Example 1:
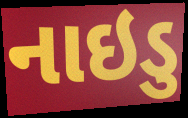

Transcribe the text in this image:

નાઇડુ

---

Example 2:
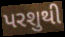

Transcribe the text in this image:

પરશુથી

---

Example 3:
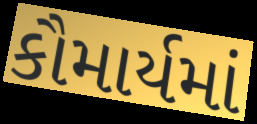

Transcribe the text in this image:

કૌમાર્યમાં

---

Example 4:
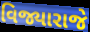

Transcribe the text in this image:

વિજ્યારાજે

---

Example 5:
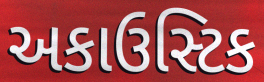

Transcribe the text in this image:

અકાઉસ્ટિક